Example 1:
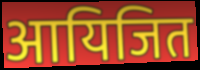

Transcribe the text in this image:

आयिजित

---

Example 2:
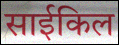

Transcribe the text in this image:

साईकिल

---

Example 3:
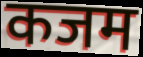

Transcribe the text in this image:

कजम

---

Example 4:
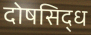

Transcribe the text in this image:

दोषसिद्ध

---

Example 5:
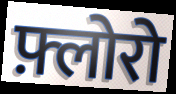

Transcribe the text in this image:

फ़्लोरो